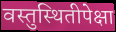
वस्तुस्थितीपेक्षा